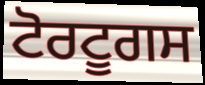
ਟੋਰਟੂਗਸ